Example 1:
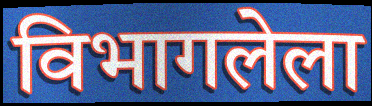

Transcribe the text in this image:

विभागलेला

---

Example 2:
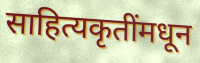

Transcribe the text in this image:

साहित्यकृतींमधून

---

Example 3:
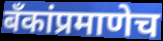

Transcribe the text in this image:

बॅंकांप्रमाणेच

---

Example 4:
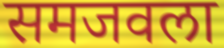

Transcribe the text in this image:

समजवला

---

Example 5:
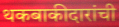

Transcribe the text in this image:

थकबाकीदारांची